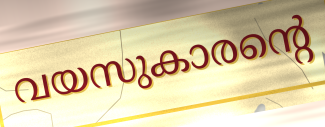
വയസുകാരന്റെ